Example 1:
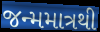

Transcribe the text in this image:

જન્મમાત્રથી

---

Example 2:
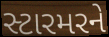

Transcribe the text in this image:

સ્ટારમરને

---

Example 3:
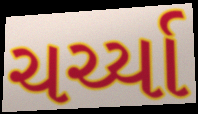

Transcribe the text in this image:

ચર્ચ્યા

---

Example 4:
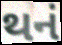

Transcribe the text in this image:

થનં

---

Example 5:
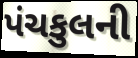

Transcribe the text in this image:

પંચકુલની